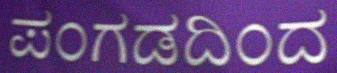
ಪಂಗಡದಿಂದ